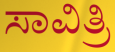
ಸಾವಿತ್ರಿ